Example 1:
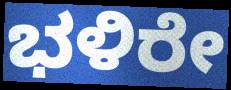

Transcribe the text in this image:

ಭಳಿರೇ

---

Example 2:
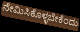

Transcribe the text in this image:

ನೇಮಿಸಿಕೊಳ್ಳಬೇಕೆಂದು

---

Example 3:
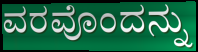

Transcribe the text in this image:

ವರವೊಂದನ್ನು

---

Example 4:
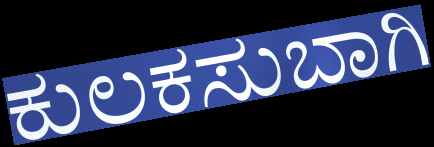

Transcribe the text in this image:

ಕುಲಕಸುಬಾಗಿ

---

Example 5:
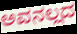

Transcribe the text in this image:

ಅವನಲ್ಲದ